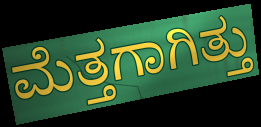
ಮೆತ್ತಗಾಗಿತ್ತು